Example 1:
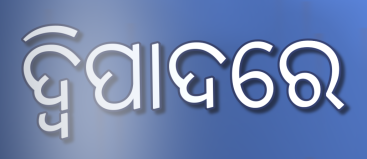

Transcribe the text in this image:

ଦ୍ୱିପାଦରେ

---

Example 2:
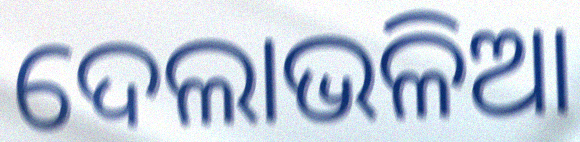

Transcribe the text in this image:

ଦେଲାଭଳିଆ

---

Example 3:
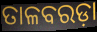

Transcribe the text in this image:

ତାଳବରଡ଼ା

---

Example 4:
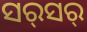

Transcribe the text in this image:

ସର୍‍ସର୍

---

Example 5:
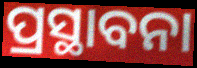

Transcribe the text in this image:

ପ୍ରସ୍ଥାବନା